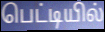
பெட்டியில்